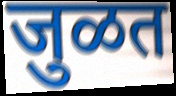
जुळत